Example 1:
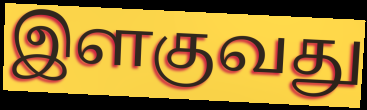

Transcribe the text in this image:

இளகுவது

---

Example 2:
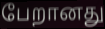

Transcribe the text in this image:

பேறானது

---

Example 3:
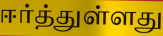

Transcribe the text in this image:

ஈர்த்துள்ளது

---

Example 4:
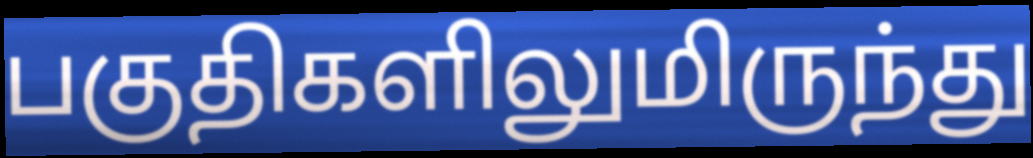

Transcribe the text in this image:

பகுதிகளிலுமிருந்து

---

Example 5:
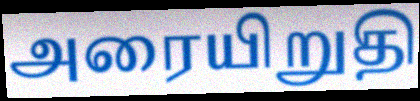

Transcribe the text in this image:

அரையிறுதி